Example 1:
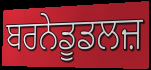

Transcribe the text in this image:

ਬਰਨੇਡੂਡਲਜ਼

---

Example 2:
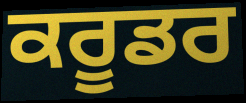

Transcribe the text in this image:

ਕਰੂਡਰ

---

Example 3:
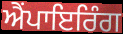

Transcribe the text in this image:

ਐਂਪਾਇਰਿੰਗ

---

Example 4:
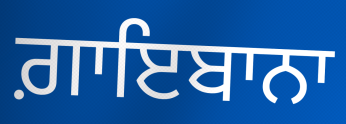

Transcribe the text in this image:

ਗ਼ਾਇਬਾਨਾ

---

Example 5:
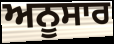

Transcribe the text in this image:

ਅਨੂਸਾਰ